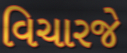
વિચારજે